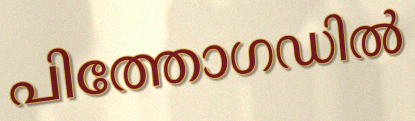
പിത്തോഗഡിൽ